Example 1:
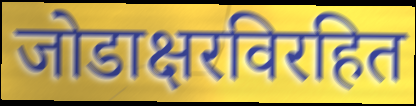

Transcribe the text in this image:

जोडाक्षरविरहित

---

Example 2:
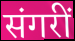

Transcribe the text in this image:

संगरीं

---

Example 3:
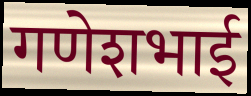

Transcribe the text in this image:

गणेशभाई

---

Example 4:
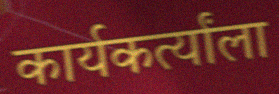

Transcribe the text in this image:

कार्यकर्त्यांला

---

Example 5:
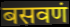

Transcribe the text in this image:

बसवणं